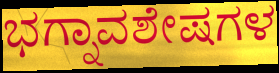
ಭಗ್ನಾವಶೇಷಗಳ